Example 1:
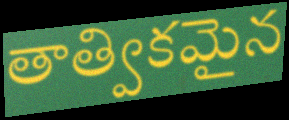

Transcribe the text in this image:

తాత్వికమైన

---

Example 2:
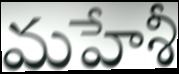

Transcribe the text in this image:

మహేశీ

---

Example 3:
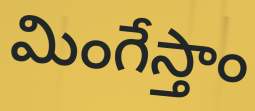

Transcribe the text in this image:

మింగేస్తాం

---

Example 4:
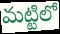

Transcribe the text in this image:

మట్టిలో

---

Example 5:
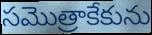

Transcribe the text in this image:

సమొత్రాకేకును